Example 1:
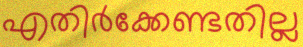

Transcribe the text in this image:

എതിർക്കേണ്ടതില്ല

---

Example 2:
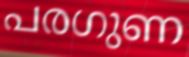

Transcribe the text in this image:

പരഗുണ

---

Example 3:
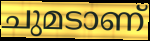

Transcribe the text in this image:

ചുമടാണ്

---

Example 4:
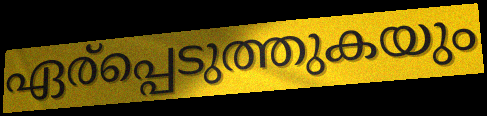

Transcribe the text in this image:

ഏര്പ്പെടുത്തുകയും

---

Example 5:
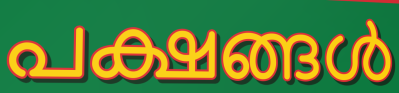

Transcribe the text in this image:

പക്ഷങ്ങൾ